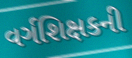
વર્ગશિક્ષકની